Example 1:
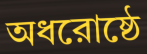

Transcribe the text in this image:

অধরোষ্ঠে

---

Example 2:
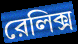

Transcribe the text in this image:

রেলিক্স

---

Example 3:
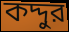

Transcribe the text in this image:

কদ্দুর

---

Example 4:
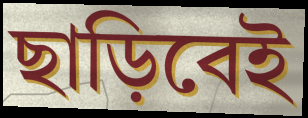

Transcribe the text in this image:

ছাড়িবেই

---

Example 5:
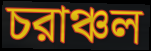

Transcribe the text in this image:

চরাঞ্চল